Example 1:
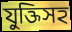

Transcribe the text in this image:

যুক্তিসহ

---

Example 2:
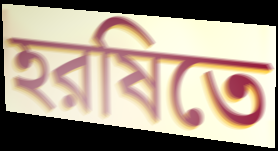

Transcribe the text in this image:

হরষিতে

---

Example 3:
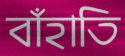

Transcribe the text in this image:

বাঁহাতি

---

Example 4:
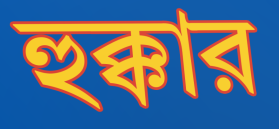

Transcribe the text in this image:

হুক্কার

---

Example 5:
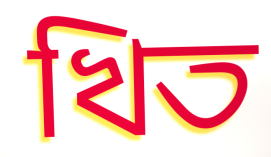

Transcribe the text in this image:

খিত